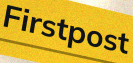
Firstpost